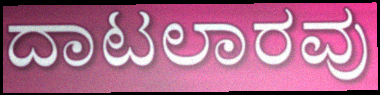
ದಾಟಲಾರವು